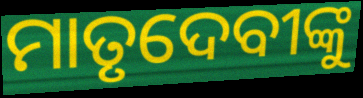
ମାତୃଦେବୀଙ୍କୁ